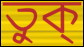
তুক্